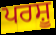
ਪਰਸ਼ੂ